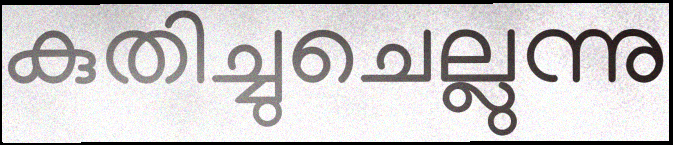
കുതിച്ചുചെല്ലുന്നു